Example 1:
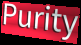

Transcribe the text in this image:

Purity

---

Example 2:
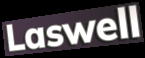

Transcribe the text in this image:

Laswell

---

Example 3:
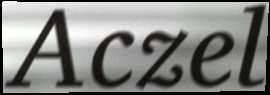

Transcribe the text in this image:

Aczel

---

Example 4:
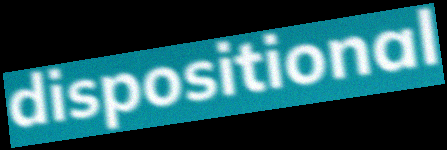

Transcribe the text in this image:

dispositional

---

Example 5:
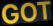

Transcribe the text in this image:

GOT